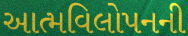
આત્મવિલોપનની